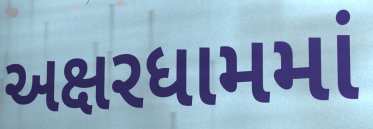
અક્ષરધામમાં